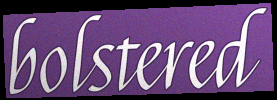
bolstered